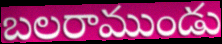
బలరాముండు